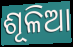
ଶୂଳିଆ